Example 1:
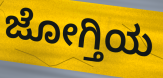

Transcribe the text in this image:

ಜೋಗ್ತಿಯ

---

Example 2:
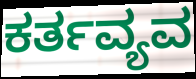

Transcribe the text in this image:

ಕರ್ತವ್ಯವ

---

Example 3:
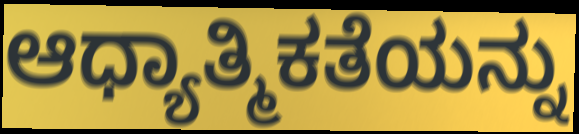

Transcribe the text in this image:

ಆಧ್ಯಾತ್ಮಿಕತೆಯನ್ನು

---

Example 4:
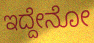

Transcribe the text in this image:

ಇದ್ದೇನೋ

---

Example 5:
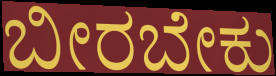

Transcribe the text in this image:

ಬೀರಬೇಕು